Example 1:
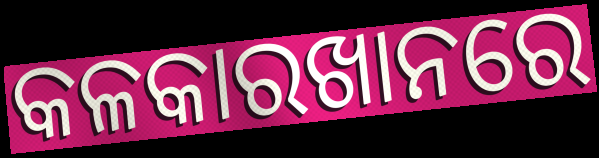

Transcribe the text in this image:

କଳକାରଖାନରେ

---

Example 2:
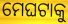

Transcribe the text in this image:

ମେଘଟାକୁ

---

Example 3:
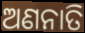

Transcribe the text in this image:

ଅଣନାତି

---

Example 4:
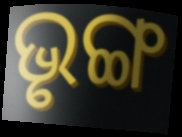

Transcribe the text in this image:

ଭୃଙ୍ଗ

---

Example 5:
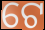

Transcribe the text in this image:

ଟେ